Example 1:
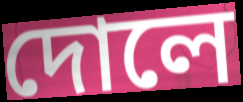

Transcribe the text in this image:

দোলে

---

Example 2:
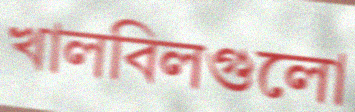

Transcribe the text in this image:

খালবিলগুলো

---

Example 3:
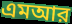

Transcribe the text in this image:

এমআর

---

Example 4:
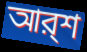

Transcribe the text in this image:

আর্‌শ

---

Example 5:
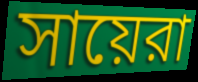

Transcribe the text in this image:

সায়েরা